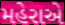
મહેરાએ